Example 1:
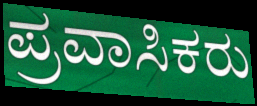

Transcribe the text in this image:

ಪ್ರವಾಸಿಕರು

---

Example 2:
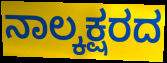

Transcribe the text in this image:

ನಾಲ್ಕಕ್ಷರದ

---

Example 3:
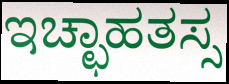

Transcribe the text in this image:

ಇಚ್ಛಾಹತಸ್ಸ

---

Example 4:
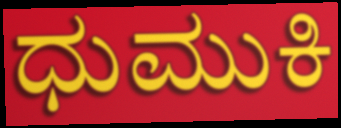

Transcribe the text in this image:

ಧುಮುಕಿ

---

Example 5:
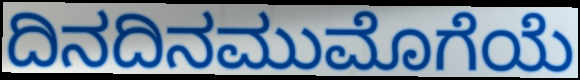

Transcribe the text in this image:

ದಿನದಿನಮುಮೊಗೆಯೆ